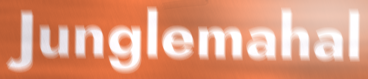
Junglemahal